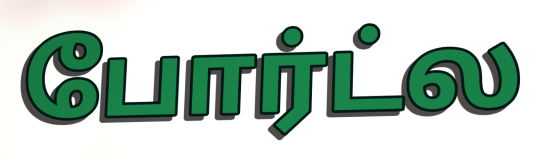
போர்ட்ல